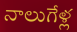
నాలుగేళ్ల